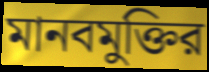
মানবমুক্তির